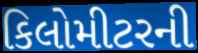
કિલોમીટરની